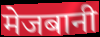
मेजबानी